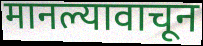
मानल्यावाचून